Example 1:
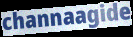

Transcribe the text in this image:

channaagide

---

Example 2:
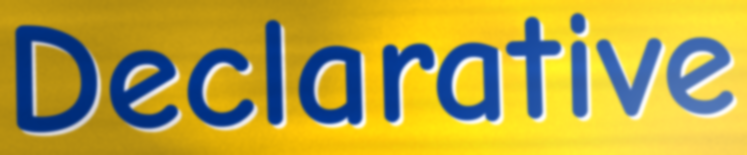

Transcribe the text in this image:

Declarative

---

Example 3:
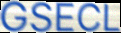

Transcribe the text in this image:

GSECL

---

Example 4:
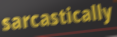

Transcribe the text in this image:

sarcastically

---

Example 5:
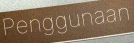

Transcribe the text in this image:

Penggunaan